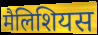
मैलिशियस